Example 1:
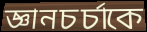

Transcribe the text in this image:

জ্ঞানচর্চাকে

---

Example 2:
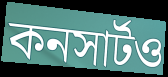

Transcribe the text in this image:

কনসার্টও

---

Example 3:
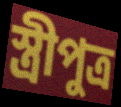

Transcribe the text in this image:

স্ত্রীপুত্র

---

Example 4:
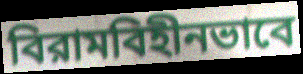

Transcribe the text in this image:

বিরামবিহীনভাবে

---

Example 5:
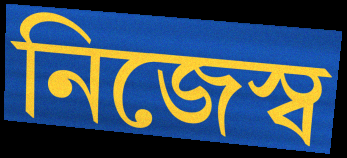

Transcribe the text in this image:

নিজেস্ব